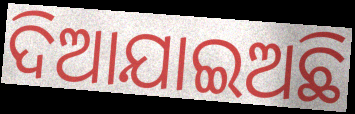
ଦିଆଯାଇଅଛି